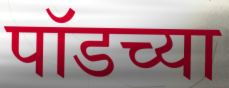
पॉडच्या